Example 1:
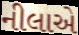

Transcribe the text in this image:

નીલાએ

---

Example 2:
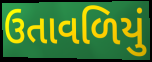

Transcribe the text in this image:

ઉતાવળિયું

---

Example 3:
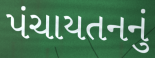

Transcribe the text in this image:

પંચાયતનનું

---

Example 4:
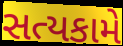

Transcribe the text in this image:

સત્યકામે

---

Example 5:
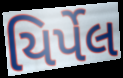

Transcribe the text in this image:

યિર્પેલ